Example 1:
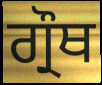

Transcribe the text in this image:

ਗ੍ਰੌਥ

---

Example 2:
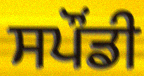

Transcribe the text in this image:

ਸਪੌਂਡੀ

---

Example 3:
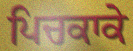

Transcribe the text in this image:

ਪਿਚਕਾਕੇ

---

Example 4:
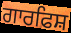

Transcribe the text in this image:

ਗਾਰਫਿਸ਼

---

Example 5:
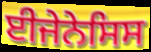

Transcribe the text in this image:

ਈਜੇਨੇਸਿਸ